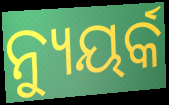
ନ୍ୟୁୟର୍କ